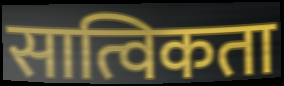
सात्विकता